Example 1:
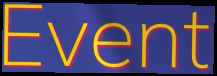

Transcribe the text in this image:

Event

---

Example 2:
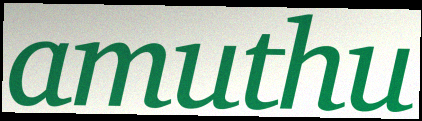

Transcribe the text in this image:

amuthu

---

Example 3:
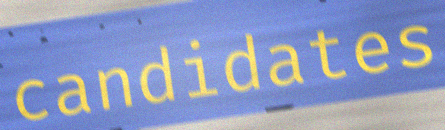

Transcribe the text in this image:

candidates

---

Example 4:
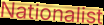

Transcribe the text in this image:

Nationalist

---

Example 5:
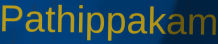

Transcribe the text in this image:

Pathippakam